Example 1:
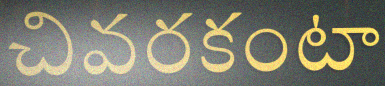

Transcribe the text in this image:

చివరకంటా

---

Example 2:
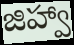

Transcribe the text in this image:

జిహ్వా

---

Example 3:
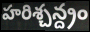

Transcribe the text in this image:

హరిశ్చన్ద్రం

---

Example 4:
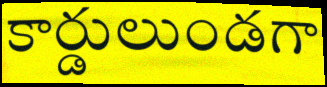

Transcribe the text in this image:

కార్డులుండగా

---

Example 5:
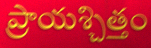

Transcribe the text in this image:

ప్రాయశ్చిత్తం